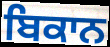
ਬਿਕਾਨ